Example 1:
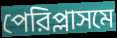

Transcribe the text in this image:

পেরিপ্লাসমে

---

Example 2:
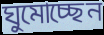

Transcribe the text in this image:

ঘুমোচ্ছেন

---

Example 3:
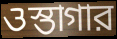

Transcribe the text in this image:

ওস্তাগার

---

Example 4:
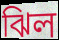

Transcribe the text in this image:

ঝিল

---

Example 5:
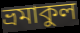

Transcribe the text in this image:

ভ্রমাকুল